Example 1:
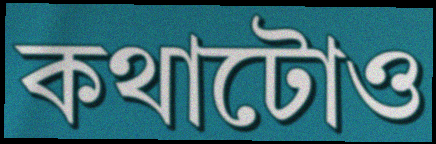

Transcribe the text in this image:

কথাটোও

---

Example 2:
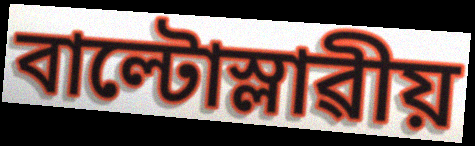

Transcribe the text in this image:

বাল্টোস্লাৱীয়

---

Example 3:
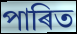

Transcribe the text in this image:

পাৰিত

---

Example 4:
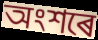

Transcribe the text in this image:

অংশৰে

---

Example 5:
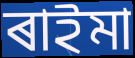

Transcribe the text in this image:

ৰাইমা